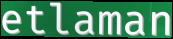
etlaman